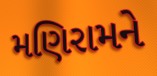
મણિરામને